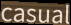
casual